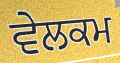
ਵੇਲਕਮ